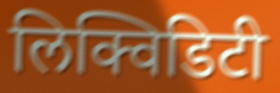
लिक्विडिटी